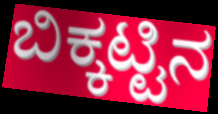
ಬಿಕ್ಕಟ್ಟಿನ